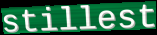
stillest